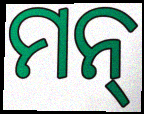
ମନ୍